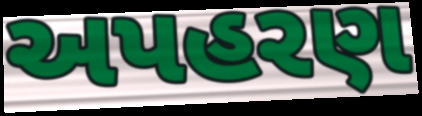
અપહરણ